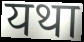
यथा